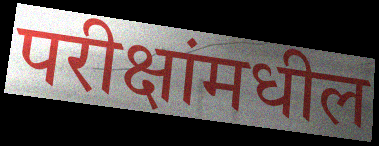
परीक्षांमधील